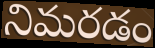
నిమరడం